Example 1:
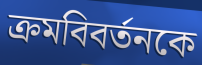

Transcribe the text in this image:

ক্রমবিবর্তনকে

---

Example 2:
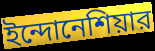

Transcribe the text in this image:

ইন্দোনেশিয়ার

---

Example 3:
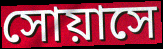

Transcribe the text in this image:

সোয়াসে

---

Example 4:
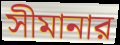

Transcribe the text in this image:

সীমানার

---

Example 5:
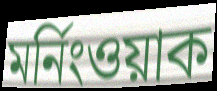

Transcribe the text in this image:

মর্নিংওয়াক